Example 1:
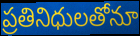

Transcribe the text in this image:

ప్రతినిధులతోనూ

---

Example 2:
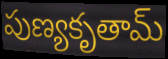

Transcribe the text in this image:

పుణ్యకృతామ్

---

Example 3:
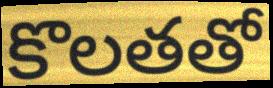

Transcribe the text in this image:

కొలతతో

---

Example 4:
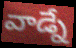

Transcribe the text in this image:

వాడ్నే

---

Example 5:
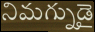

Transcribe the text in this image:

నిమగ్నుడై